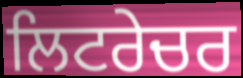
ਲਿਟਰੇਚਰ